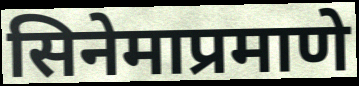
सिनेमाप्रमाणे